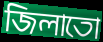
জিলাতো